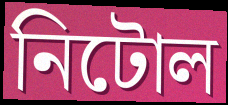
নিটোল